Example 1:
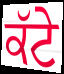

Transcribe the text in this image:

ਕੱਟੇ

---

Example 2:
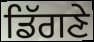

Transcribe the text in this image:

ਡਿੱਗਣੇ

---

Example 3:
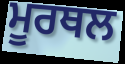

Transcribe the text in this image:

ਮੂਰਥਲ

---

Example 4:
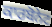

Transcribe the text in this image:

ਕਾਰਬੋਨੇਟ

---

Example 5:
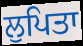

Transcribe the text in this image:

ਲੁਪਿਤਾ